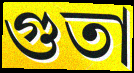
গুতা